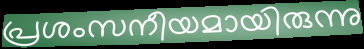
പ്രശംസനീയമായിരുന്നു